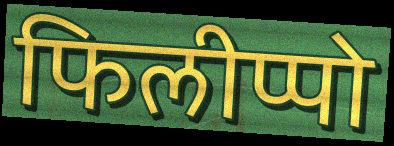
फिलीप्पो